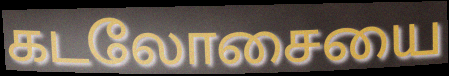
கடலோசையை